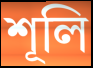
শূলি